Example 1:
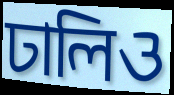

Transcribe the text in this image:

ঢালিও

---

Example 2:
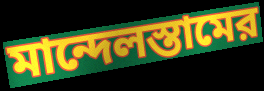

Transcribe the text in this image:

মান্দেলস্তামের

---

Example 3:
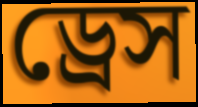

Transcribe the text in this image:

ড্রেস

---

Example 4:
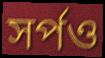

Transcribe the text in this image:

সর্পও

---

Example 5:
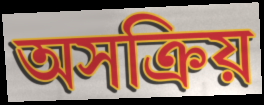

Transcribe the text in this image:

অসক্রিয়